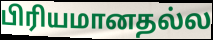
பிரியமானதல்ல